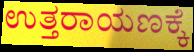
ಉತ್ತರಾಯಣಕ್ಕೆ